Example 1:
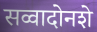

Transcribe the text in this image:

सव्वादोनशे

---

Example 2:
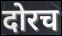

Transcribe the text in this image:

दोरच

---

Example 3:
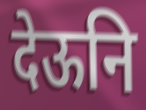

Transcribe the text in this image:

देऊनि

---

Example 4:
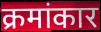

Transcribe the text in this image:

क्रमांकार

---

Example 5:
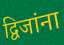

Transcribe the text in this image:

द्विजांना